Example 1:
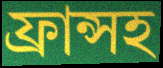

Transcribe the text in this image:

ফ্রান্সহ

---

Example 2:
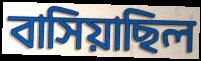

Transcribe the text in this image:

বাসিয়াছিল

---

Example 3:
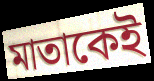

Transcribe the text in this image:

মাতাকেই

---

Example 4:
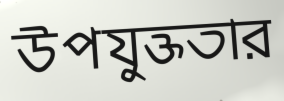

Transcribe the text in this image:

উপযুক্ততার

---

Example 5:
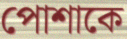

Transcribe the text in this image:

পোশাকে